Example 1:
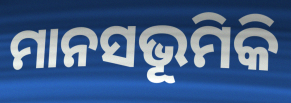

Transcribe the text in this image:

ମାନସଭୂମିକି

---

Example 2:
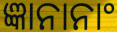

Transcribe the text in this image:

ଜ୍ଞାନାନାଂ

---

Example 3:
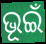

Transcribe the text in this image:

ଭୂଇଁ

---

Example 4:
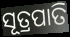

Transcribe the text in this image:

ସୂତ୍ରପାତି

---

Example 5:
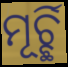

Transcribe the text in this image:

ମୂର୍ଚ୍ଛି